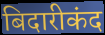
बिदारीकंद